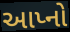
આપ્નો